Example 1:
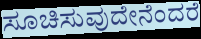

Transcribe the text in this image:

ಸೂಚಿಸುವುದೇನೆಂದರೆ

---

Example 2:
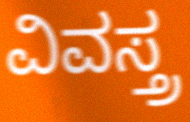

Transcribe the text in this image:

ವಿವಸ್ತ್ರ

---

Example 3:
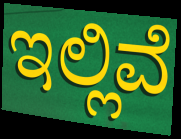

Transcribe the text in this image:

ಇಲ್ಲಿವೆ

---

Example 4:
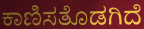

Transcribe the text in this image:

ಕಾಣಿಸತೊಡಗಿದೆ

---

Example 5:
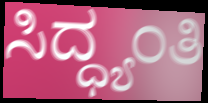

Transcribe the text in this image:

ಸಿದ್ಧ್ಯಂತಿ